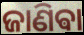
ଜାଣିଵା